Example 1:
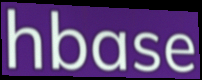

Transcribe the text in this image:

hbase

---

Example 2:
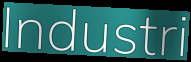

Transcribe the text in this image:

Industri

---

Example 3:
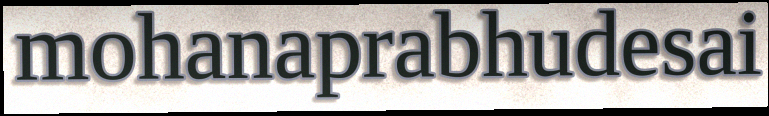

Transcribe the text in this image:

mohanaprabhudesai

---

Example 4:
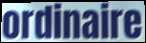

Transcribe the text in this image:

ordinaire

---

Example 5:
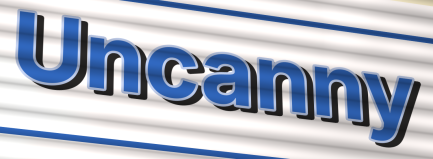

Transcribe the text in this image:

Uncanny